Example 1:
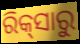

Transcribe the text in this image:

ରିକ୍‌ସାରୁ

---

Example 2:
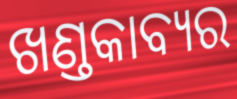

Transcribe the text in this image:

ଖଣ୍ଡକାବ୍ୟର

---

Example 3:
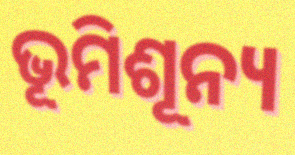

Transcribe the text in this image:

ଭୂମିଶୂନ୍ୟ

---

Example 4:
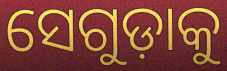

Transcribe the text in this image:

ସେଗୁଡ଼ାକୁ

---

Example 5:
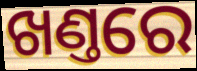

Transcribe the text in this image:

ଖଣ୍ତରେ